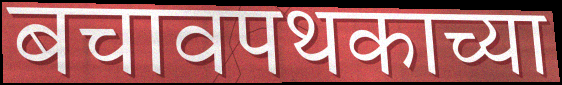
बचावपथकाच्या